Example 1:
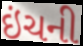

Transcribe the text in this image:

ઇંચની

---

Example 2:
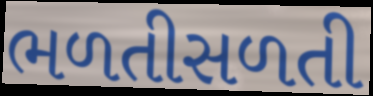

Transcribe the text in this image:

ભળતીસળતી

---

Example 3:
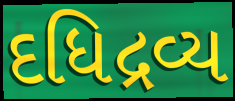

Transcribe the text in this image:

દધિદ્રવ્ય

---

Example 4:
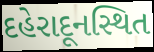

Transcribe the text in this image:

દહેરાદૂનસ્થિત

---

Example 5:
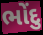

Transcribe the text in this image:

ભોંદુ